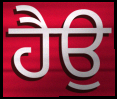
ਹੈਉ